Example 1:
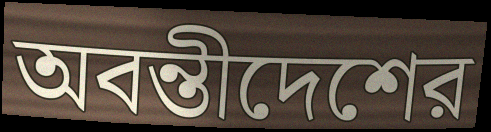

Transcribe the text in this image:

অবন্তীদেশের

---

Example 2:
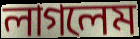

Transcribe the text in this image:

লাগলেম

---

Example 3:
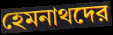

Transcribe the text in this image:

হেমনাথদের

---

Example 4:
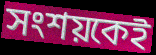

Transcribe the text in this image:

সংশয়কেই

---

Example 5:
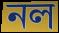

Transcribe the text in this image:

নল